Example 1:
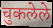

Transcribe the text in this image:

चुकलेले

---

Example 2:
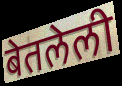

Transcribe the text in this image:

बेतलेली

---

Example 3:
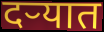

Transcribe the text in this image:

दऱ्यात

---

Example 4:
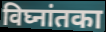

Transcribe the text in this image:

विघ्नांतका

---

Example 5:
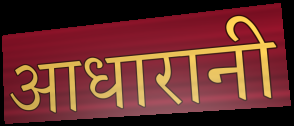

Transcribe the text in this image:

आधारानी